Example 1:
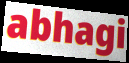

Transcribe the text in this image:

abhagi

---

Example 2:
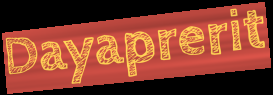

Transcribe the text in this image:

Dayaprerit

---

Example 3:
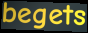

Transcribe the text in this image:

begets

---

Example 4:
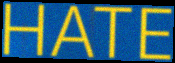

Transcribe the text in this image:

HATE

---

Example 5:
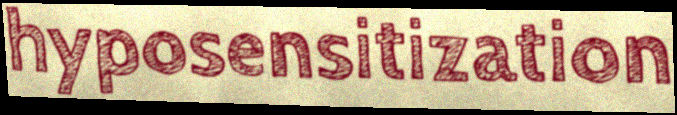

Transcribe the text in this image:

hyposensitization